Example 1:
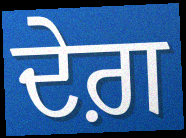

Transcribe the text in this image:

ਦੇਗ਼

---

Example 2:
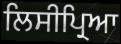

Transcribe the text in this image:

ਲਿਸੀਪ੍ਰਿਆ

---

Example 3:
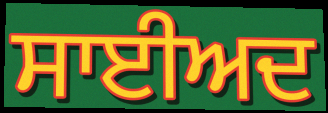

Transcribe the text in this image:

ਸਾਈਅਦ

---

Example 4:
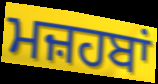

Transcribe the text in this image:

ਮਜ਼ਹਬਾਂ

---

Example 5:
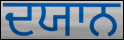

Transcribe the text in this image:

ਦਯਾਨ